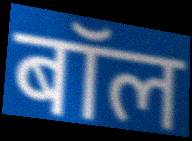
बॉल